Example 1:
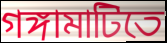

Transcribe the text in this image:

গঙ্গামাটিতে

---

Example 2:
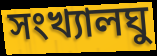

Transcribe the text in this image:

সংখ্যালঘু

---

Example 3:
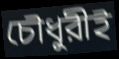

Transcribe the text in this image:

চৌধুরীই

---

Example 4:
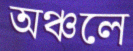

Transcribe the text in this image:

অঞ্চলে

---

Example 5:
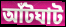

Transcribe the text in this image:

আঁটঘাট